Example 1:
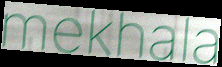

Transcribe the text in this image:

mekhala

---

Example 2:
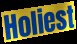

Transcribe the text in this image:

Holiest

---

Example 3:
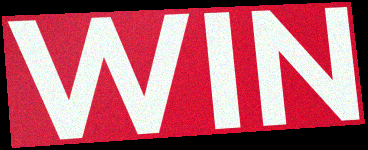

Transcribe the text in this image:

WIN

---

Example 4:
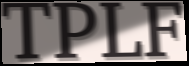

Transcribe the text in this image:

TPLF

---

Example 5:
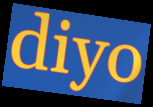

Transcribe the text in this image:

diyo